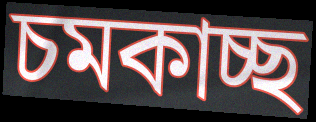
চমকাচ্ছ